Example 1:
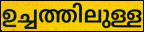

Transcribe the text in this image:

ഉച്ചത്തിലുള്ള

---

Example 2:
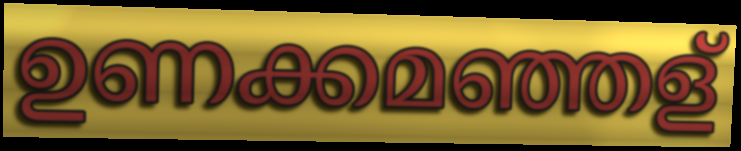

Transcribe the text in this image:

ഉണക്കമഞ്ഞള്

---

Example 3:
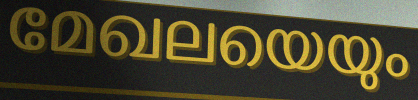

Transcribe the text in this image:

മേഖലയെയും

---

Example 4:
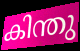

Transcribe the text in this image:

കിന്തു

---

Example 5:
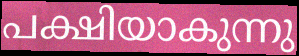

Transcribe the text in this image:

പക്ഷിയാകുന്നു